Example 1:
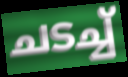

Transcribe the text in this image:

ചടച്ച്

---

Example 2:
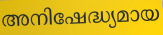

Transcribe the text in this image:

അനിഷേദ്ധ്യമായ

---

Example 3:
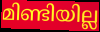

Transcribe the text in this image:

മിണ്ടിയില്ല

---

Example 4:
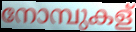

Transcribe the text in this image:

നോമ്പുകള്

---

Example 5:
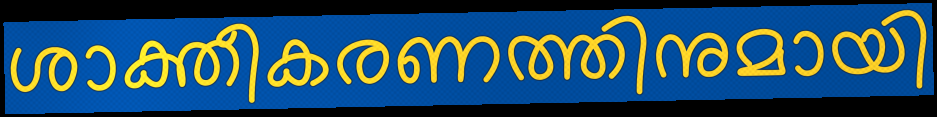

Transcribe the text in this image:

ശാക്തീകരണത്തിനുമായി